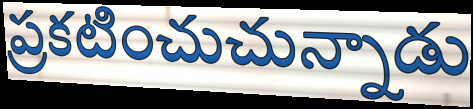
ప్రకటించుచున్నాడు